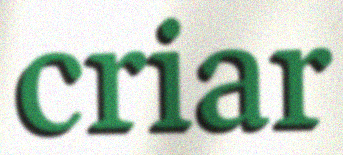
criar